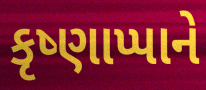
કૃષ્ણાપ્પાને